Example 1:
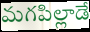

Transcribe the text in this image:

మగపిల్లాడే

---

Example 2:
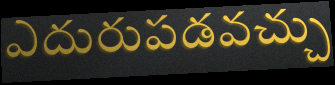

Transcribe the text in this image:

ఎదురుపడవచ్చు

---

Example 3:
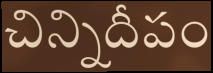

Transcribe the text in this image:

చిన్నిదీపం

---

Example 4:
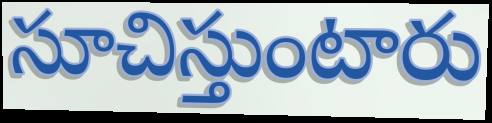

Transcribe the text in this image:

సూచిస్తుంటారు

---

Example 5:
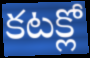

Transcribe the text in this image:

కటక్లో